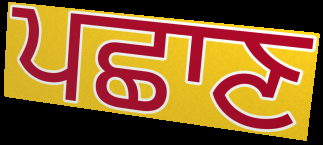
ਪਛਾਣ